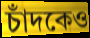
চাঁদকেও